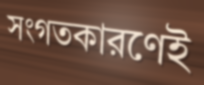
সংগতকারণেই